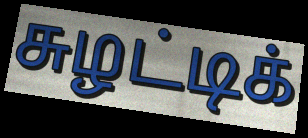
சுழட்டிக்